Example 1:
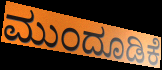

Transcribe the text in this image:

ಮುಂದೂಡಿಕೆ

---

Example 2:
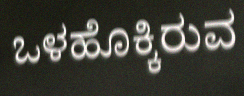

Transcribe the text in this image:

ಒಳಹೊಕ್ಕಿರುವ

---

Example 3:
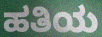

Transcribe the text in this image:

ಹತಿಯ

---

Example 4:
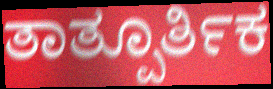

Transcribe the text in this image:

ತಾತ್ಪೂರ್ತಿಕ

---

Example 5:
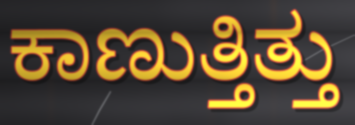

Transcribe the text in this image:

ಕಾಣುತ್ತಿತ್ತು